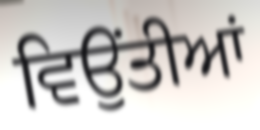
ਵਿਉਂਤੀਆਂ